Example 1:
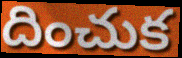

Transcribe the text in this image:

దించుక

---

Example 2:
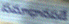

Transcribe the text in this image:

సమాధానపడే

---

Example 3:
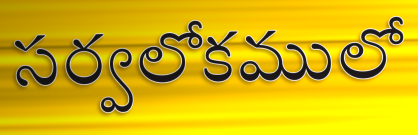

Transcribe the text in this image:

సర్వలోకములో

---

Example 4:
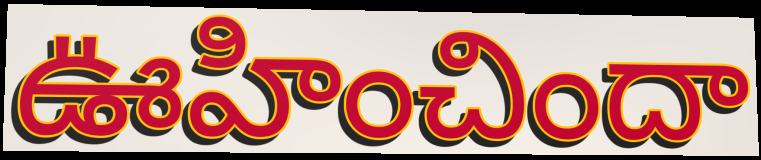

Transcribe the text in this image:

ఊహించిందా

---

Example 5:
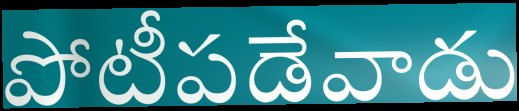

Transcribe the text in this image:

పోటీపడేవాడు